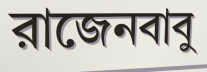
রাজেনবাবু